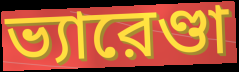
ভ্যারেণ্ডা